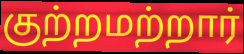
குற்றமற்றார்